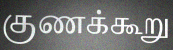
குணக்கூறு